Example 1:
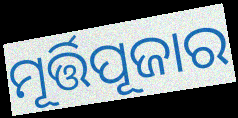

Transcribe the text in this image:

ମୂର୍ତ୍ତିପୂଜାର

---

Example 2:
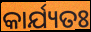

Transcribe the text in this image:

କାର୍ଯ୍ୟତଃ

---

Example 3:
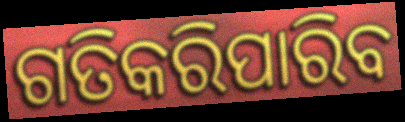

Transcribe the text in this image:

ଗତିକରିପାରିବ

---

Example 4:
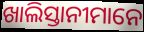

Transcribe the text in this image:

ଖାଲିସ୍ତାନୀମାନେ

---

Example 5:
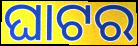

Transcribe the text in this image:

ଘାଟର